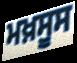
ਮਖ਼ਸੂਸ